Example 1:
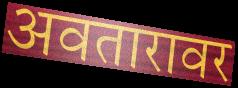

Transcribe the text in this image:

अवतारावर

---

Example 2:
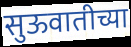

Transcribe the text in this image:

सुऊवातीच्या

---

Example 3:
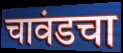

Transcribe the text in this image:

चावंडचा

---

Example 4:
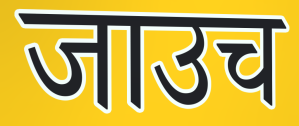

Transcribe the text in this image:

जाउच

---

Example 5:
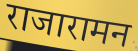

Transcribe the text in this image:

राजारामन